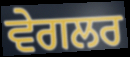
ਵੇਗਲਰ